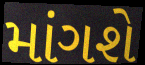
માંગશે